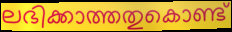
ലഭിക്കാത്തതുകൊണ്ട്